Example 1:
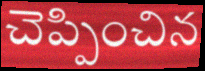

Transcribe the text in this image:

చెప్పించిన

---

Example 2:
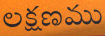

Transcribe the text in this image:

లక్షణము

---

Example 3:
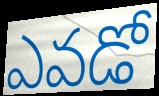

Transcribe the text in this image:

ఎవడో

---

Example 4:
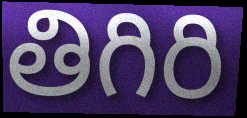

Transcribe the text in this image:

తిగిరి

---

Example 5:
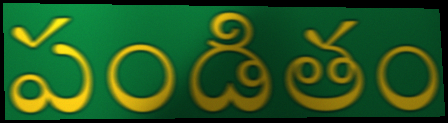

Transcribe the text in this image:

పండితం